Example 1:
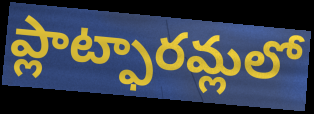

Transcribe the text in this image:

ప్లాట్ఫారమ్లలో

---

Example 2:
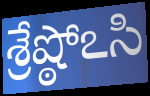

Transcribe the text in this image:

శ్రేష్ఠోఽసి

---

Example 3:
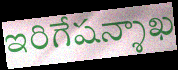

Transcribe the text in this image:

ఇరిగేషన్శాఖ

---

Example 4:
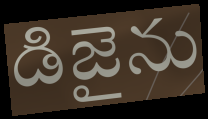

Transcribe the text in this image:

డిజైను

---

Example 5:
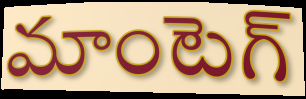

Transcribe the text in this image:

మాంటెగ్